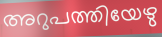
അറുപത്തിയേഴു